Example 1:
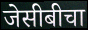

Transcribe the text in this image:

जेसीबीचा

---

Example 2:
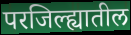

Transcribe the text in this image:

परजिल्ह्यातील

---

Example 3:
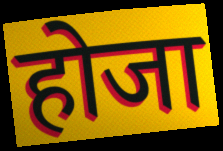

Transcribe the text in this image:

होजा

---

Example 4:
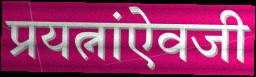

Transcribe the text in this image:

प्रयत्नांऐवजी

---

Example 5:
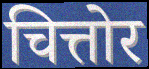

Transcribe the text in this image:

चित्तोर